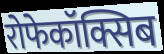
रोफेकॉक्सिब